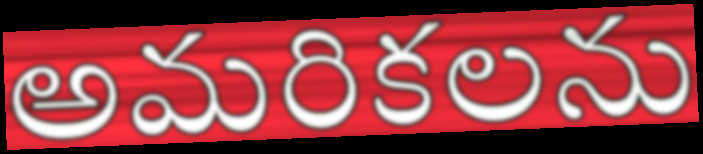
అమరికలను